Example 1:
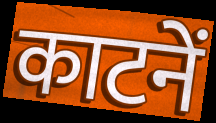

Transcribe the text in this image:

काटनें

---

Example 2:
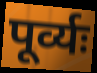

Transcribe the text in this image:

पूर्व्यः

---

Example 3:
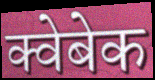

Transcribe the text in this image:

क्वेबेक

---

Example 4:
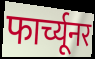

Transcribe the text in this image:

फार्च्यूनर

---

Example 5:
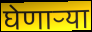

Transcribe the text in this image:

घेणाऱ्या